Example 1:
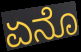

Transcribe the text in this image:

ಏನೊ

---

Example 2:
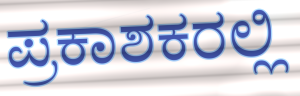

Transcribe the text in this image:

ಪ್ರಕಾಶಕರಲ್ಲಿ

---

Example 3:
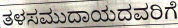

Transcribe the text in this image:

ತಳಸಮುದಾಯದವರಿಗೆ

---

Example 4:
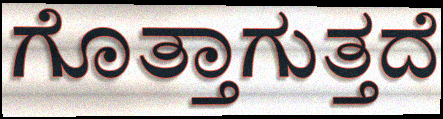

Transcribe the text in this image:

ಗೊತ್ತಾಗುತ್ತದೆ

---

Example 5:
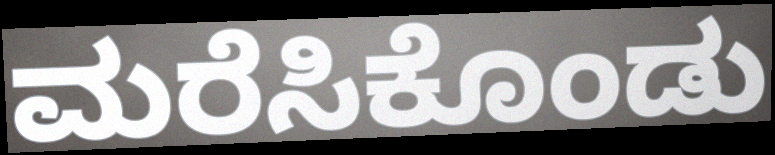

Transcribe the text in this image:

ಮರೆಸಿಕೊಂಡು